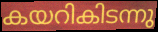
കയറികിടന്നു